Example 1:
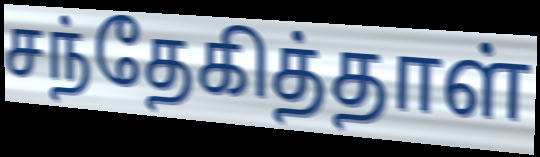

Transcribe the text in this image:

சந்தேகித்தாள்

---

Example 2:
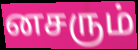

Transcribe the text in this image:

னசரும்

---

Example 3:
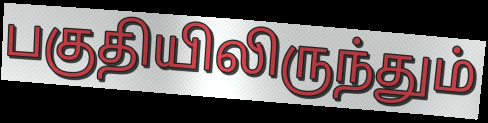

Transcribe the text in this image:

பகுதியிலிருந்தும்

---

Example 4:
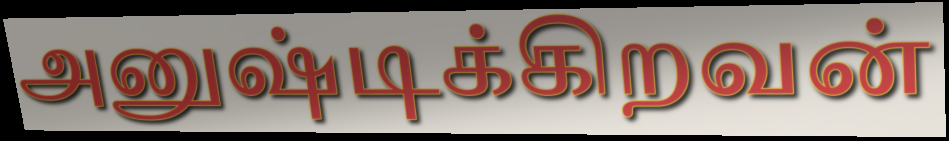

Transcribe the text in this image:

அனுஷ்டிக்கிறவன்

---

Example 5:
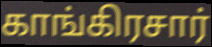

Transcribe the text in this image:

காங்கிரசார்